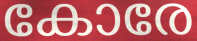
കോരേ